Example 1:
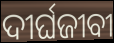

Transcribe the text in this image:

ଦୀର୍ଘଜୀବୀ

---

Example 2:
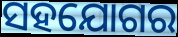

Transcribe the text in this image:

ସହଯୋଗର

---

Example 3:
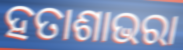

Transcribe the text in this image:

ହତାଶାଭରା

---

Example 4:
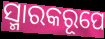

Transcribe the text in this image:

ସ୍ମାରକରୂପେ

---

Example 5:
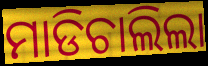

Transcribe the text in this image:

ମାଡିଚାଲିଲା